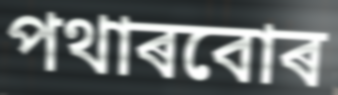
পথাৰবোৰ